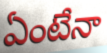
ఏంటేనా